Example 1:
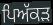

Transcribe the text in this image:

ਪਿਅੱਕੜ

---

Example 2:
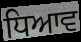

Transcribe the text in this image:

ਧਿਆਵ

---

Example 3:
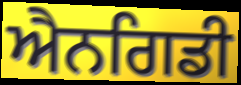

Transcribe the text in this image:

ਐਨਗਿਡੀ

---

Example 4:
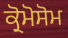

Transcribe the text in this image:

ਕ੍ਰੋਮੋਸੋਮ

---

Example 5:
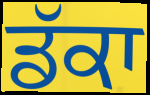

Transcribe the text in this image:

ਡੱਕਾ